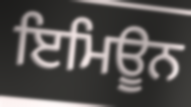
ਇਮਿਊਨ